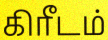
கிரீடம்